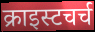
क्राइस्टचर्च